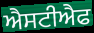
ਐਸਟੀਐਫ